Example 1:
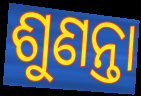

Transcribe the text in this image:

ଶୁଣନ୍ତା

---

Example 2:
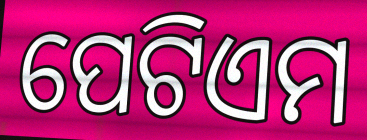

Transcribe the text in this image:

ପେଟିଏମ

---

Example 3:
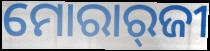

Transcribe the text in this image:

ମୋରାର୍‌ଜୀ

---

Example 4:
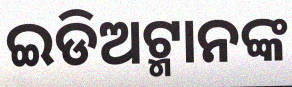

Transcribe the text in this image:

ଇଡିଅଟ୍ମାନଙ୍କ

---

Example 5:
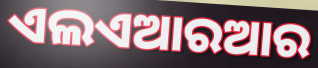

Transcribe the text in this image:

ଏଲଏଆରଆର